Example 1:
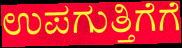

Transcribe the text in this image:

ಉಪಗುತ್ತಿಗೆಗೆ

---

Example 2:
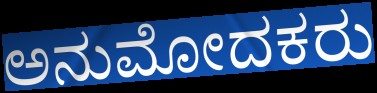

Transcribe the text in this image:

ಅನುಮೋದಕರು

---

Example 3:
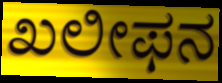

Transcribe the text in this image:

ಖಲೀಫನ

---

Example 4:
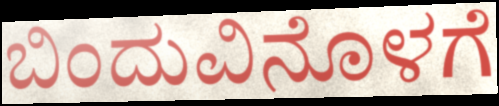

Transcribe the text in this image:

ಬಿಂದುವಿನೊಳಗೆ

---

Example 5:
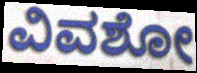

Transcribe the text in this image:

ವಿವಶೋ